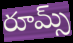
రూమ్స్